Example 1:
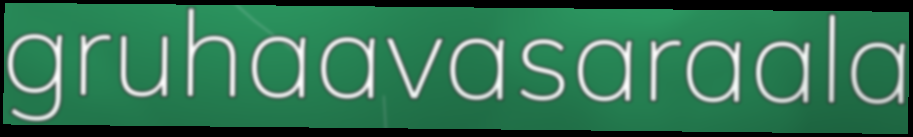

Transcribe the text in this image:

gruhaavasaraala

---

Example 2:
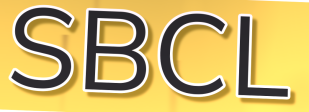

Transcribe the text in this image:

SBCL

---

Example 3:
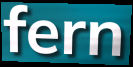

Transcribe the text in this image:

fern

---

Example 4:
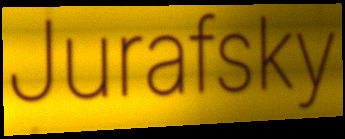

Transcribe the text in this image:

Jurafsky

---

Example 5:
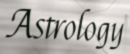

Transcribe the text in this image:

Astrology